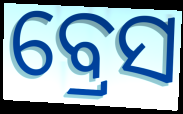
ବ୍ରେସ